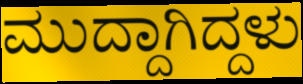
ಮುದ್ದಾಗಿದ್ದಳು